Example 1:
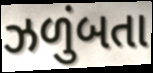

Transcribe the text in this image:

ઝળુંબતા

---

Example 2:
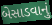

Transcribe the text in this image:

બેસાડવાનું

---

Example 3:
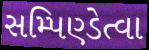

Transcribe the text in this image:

સમ્પિણ્ડેત્વા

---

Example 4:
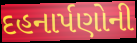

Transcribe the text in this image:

દહનાર્પણોની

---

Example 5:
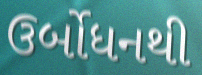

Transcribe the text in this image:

ઉર્બોધનથી